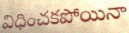
విధించకపోయినా